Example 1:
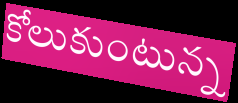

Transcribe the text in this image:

కోలుకుంటున్న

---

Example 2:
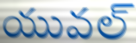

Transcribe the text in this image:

యువల్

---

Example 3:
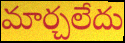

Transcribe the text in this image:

మార్చలేదు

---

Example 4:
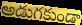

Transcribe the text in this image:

అడుగకుండా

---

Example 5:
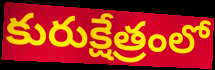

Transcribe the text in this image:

కురుక్షేత్రంలో